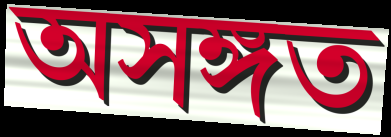
অসঙ্গত